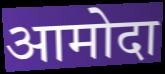
आमोदा